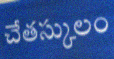
చేతస్కులం